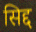
सिद्द